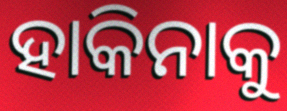
ହାକିନାକୁ